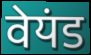
वेयंड